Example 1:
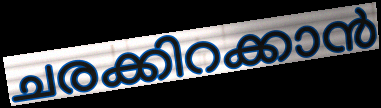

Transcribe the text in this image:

ചരക്കിറക്കാൻ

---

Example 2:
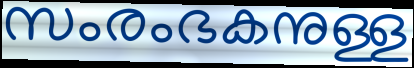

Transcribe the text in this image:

സംരംഭകനുള്ള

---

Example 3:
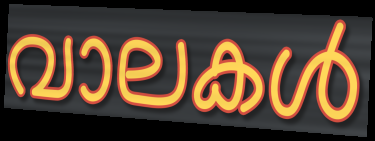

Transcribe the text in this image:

വാലകൾ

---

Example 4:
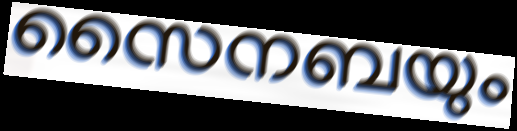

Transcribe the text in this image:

സൈനബയും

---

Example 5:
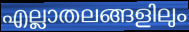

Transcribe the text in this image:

എല്ലാതലങ്ങളിലും